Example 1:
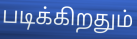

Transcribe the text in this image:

படிக்கிறதும்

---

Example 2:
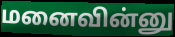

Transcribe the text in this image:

மனைவின்னு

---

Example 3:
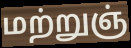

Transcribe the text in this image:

மற்றுஞ்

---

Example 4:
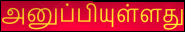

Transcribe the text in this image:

அனுப்பியுள்ளது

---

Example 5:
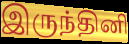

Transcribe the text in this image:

இருந்தினி